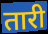
तारी